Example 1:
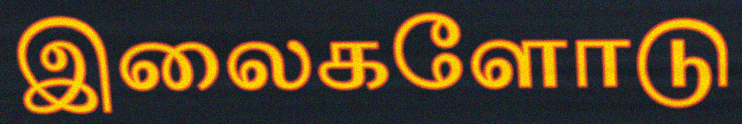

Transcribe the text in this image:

இலைகளோடு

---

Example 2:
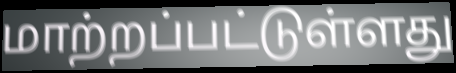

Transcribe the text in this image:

மாற்றப்பட்டுள்ளது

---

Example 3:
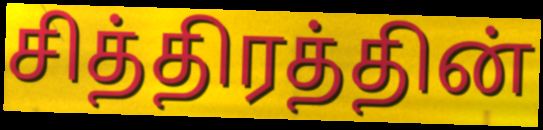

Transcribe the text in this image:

சித்திரத்தின்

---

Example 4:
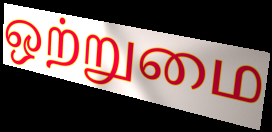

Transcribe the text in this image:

ஒற்றுமை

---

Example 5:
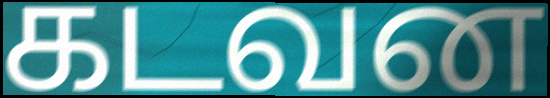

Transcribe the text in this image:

கடவன